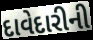
દાવેદારીની